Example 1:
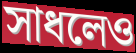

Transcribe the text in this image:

সাধলেও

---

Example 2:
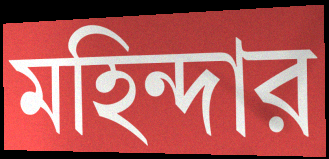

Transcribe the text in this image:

মহিন্দার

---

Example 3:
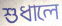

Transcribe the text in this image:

শুধালে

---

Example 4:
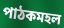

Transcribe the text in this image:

পাঠকমহল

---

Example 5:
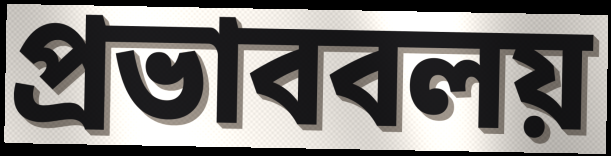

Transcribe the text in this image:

প্রভাববলয়